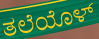
ತಲೆಯೊಳ್